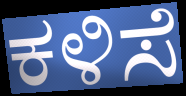
ಕಳಿಸೆ